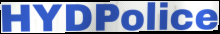
HYDPolice